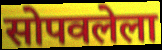
सोपवलेला